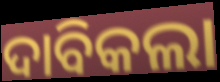
ଦାବିକଲା